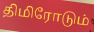
திமிரோடும்